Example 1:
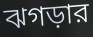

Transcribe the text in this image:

ঝগড়ার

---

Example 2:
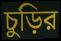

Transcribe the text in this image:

চুড়ির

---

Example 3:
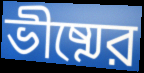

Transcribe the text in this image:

ভীষ্মের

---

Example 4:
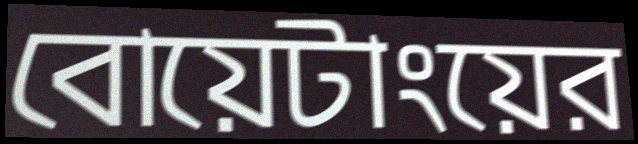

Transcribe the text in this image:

বোয়েটাংয়ের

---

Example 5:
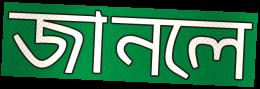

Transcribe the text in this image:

জানলে